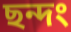
ছন্দং